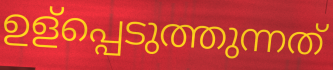
ഉള്പ്പെടുത്തുന്നത്